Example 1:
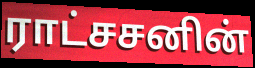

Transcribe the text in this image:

ராட்சசனின்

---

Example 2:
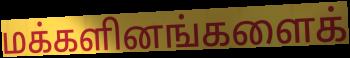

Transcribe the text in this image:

மக்களினங்களைக்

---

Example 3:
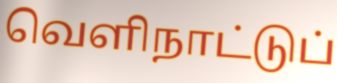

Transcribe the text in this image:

வெளிநாட்டுப்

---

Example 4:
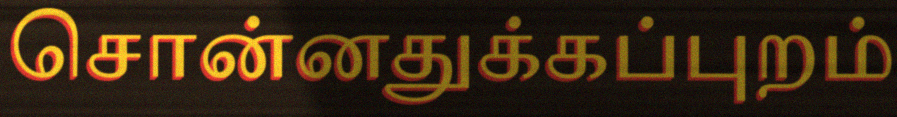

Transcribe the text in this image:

சொன்னதுக்கப்புறம்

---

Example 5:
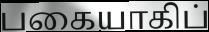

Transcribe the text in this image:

பகையாகிப்